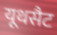
यूथसैट